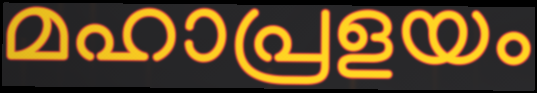
മഹാപ്രളയം